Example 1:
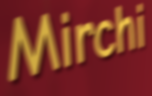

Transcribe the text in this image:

Mirchi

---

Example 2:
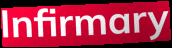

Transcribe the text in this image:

Infirmary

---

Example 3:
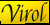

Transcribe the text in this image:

Virol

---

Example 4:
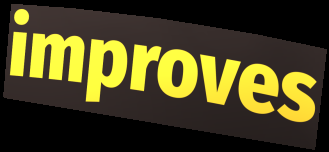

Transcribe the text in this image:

improves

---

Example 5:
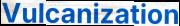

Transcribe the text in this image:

Vulcanization